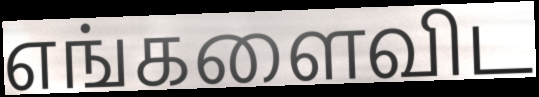
எங்களைவிட